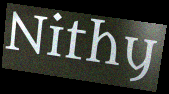
Nithy